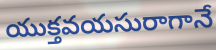
యుక్తవయసురాగానే